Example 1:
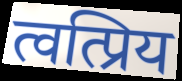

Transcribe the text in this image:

त्वत्प्रिय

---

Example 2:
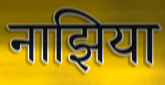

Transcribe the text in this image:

नाझिया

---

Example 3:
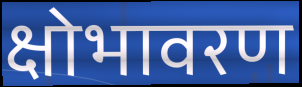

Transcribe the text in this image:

क्षोभावरण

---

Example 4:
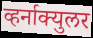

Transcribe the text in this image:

व्हर्नाक्युलर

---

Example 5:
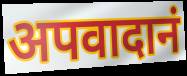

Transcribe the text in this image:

अपवादानं